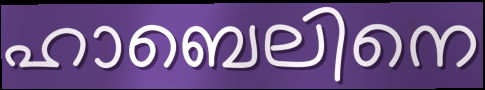
ഹാബെലിനെ